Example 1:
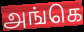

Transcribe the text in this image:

அங்கெ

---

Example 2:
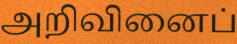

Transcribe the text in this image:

அறிவினைப்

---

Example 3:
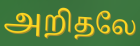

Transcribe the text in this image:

அறிதலே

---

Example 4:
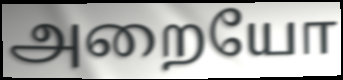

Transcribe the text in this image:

அறையோ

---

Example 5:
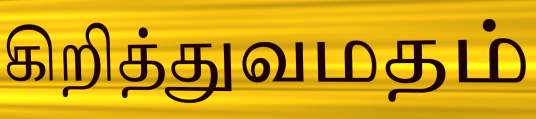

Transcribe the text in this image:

கிறித்துவமதம்